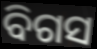
ବିଗସ